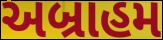
અબ્રાહમ